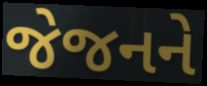
જેજનને